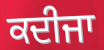
ਕਦੀਜਾ